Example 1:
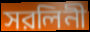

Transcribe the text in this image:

সরলিনী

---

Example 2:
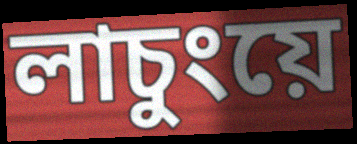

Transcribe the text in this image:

লাচুংয়ে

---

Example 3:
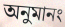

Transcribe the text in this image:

অনুমানং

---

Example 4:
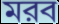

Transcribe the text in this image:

মরব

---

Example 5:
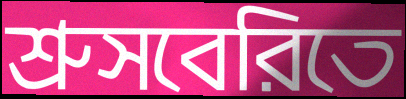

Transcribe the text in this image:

শ্রুসবেরিতে